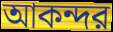
আকন্দর